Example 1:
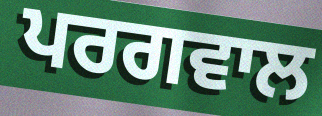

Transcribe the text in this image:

ਪਰਗਵਾਲ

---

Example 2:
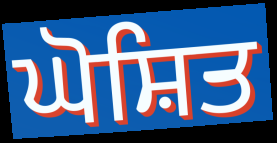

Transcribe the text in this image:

ਘੋਸ਼ਿਤ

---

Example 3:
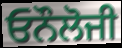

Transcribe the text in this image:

ਓਨੌਲੋਜੀ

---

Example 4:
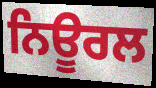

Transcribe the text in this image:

ਨਿਊਰਲ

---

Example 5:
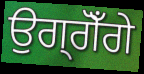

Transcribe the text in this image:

ਉਗ੍ਗੋਁਗੇ